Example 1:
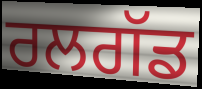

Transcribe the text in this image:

ਰਲਗੱਡ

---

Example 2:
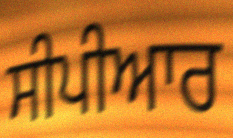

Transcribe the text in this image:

ਸੀਪੀਆਰ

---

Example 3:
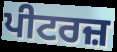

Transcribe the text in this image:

ਪੀਟਰਜ਼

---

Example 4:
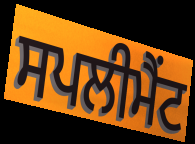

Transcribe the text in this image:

ਸਪਲੀਮੈਂਟ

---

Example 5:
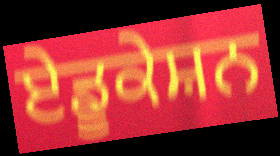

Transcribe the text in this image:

ਏਡੂਕੇਸ਼ਨ